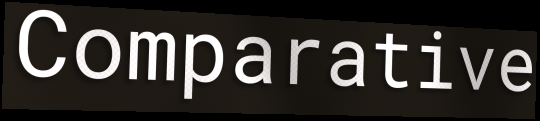
Comparative